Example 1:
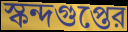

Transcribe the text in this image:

স্কন্দগুপ্তের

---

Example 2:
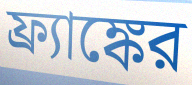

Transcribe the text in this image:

ফ্র্যাঙ্কের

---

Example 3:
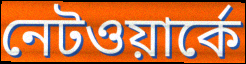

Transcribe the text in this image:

নেটওয়ার্কে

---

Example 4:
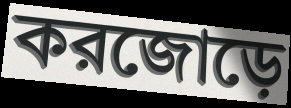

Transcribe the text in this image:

করজোড়ে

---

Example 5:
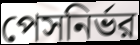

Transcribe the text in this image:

পেসনির্ভর